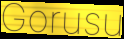
Gorusu